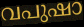
വപുഷാ